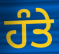
ਹੰਤੇ